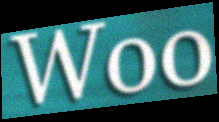
Woo